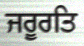
ਜਰੂਰਤਿ